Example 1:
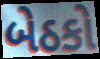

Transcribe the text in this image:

બેઠકો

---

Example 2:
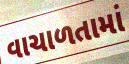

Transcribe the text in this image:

વાચાળતામાં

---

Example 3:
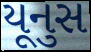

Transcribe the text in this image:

યૂનુસ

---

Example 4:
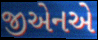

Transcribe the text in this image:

જીએનએ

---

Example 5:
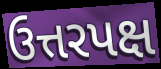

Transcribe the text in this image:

ઉત્તરપક્ષ